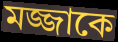
মজ্জাকে